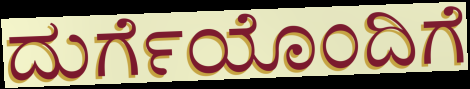
ದುರ್ಗೆಯೊಂದಿಗೆ